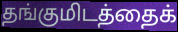
தங்குமிடத்தைக்